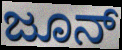
ಜೂನ್